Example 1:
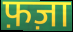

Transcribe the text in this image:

फ़ज़ा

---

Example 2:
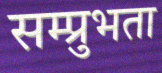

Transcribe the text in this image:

सम्प्रुभता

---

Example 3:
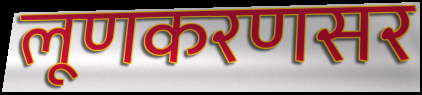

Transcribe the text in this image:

लूणकरणसर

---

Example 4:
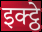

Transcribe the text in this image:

इक्ट्ठे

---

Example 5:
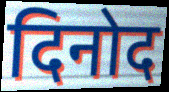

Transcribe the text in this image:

दिनोद